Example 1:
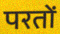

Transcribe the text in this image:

परतों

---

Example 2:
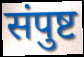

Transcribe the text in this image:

संपुष्ट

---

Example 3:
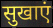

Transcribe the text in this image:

सुखाएं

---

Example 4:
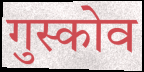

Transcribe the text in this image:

गुस्कोव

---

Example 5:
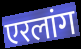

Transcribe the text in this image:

एरलांग